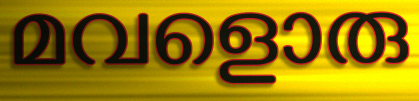
മവളൊരു